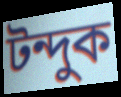
টন্দুক